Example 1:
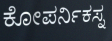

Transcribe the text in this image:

ಕೋಪರ್ನಿಕಸ್ನ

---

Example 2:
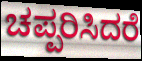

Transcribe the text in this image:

ಚಪ್ಪರಿಸಿದರೆ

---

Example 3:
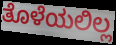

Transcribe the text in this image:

ತೊಳೆಯಲಿಲ್ಲ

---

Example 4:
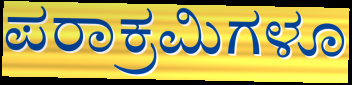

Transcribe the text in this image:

ಪರಾಕ್ರಮಿಗಳೂ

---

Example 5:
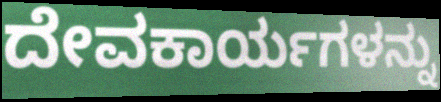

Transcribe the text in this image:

ದೇವಕಾರ್ಯಗಳನ್ನು